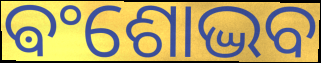
ଵଂଶୋଦ୍ଭବ